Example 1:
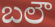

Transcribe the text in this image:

బలౌ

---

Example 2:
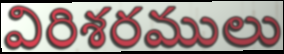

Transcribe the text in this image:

విరిశరములు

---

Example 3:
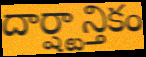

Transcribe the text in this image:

దార్ష్టాన్తికం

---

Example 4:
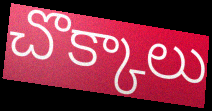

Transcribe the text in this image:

చొక్కాలు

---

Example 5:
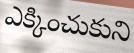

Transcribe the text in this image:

ఎక్కించుకుని